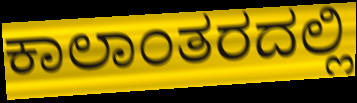
ಕಾಲಾಂತರದಲ್ಲಿ